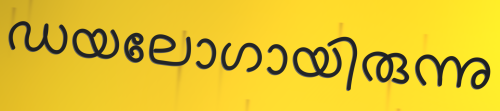
ഡയലോഗായിരുന്നു